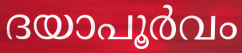
ദയാപൂർവം